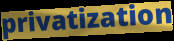
privatization